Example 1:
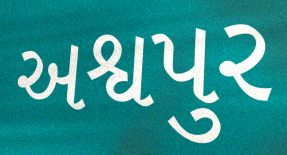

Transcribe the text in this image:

અશ્વપુર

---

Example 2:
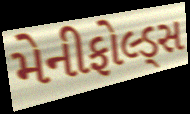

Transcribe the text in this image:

મેનીફોલ્ડ્સ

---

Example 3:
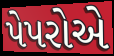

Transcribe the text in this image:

પેપરોએ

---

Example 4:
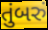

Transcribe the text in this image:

તુંબરું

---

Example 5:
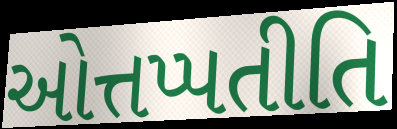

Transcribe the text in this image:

ઓત્તપ્પતીતિ